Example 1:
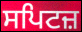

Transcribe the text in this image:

ਸਪਿਟਜ਼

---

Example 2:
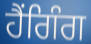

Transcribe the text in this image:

ਹੈਂਗਿੰਗ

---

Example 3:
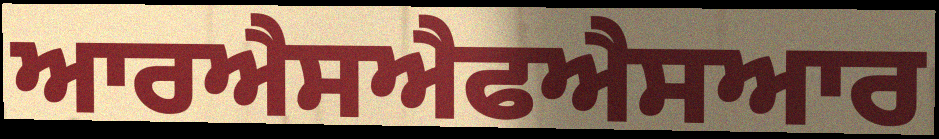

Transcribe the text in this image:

ਆਰਐਸਐਫਐਸਆਰ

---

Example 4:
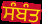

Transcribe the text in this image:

ਸੰਬੰਤ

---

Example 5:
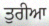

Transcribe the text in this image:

ਤੁਰੀਆ